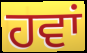
ਹਵਾਂ